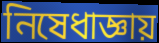
নিষেধাজ্ঞায়